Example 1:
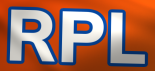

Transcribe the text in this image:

RPL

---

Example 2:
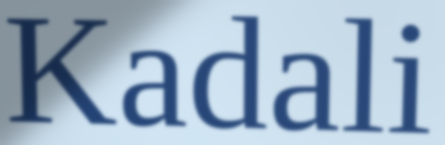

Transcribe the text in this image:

Kadali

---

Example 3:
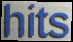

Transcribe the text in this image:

hits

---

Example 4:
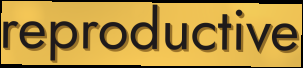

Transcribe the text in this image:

reproductive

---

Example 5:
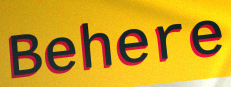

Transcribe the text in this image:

Behere